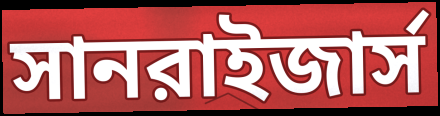
সানরাইজার্স